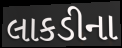
લાકડીના